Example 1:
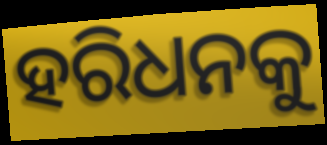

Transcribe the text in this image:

ହରିଧନକୁ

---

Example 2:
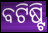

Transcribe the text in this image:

ବଟିଷ୍ଟି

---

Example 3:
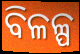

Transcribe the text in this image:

ବିଳଳ୍ପ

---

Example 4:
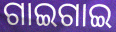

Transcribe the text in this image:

ଗାଇଗାଇ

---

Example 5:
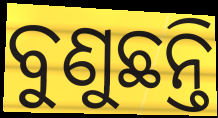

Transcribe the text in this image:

ବୁଣୁଛନ୍ତି